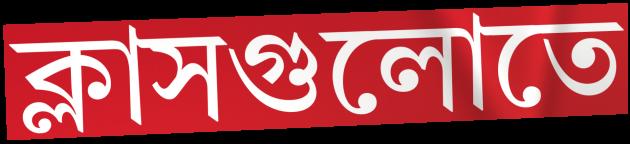
ক্লাসগুলোতে